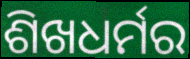
ଶିଖଧର୍ମର